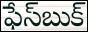
ఫేస్‌బుక్